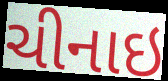
ચીનાઇ